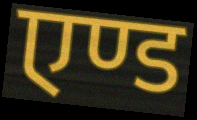
एण्ड